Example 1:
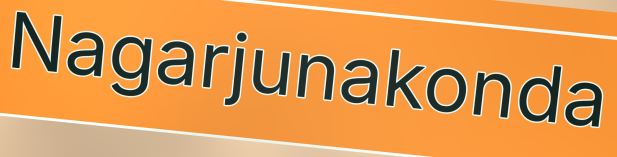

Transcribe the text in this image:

Nagarjunakonda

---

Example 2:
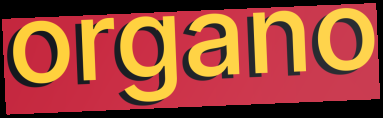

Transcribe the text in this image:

organo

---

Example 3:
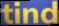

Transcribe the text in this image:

tind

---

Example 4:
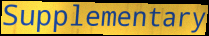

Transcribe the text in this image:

Supplementary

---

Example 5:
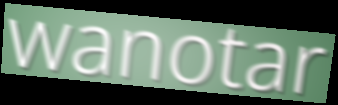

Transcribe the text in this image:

wanotar